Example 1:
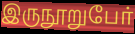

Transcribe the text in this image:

இருநூறுபேர்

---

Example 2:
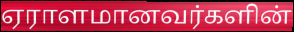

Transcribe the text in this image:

ஏராளமானவர்களின்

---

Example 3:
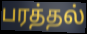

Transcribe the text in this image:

பரத்தல்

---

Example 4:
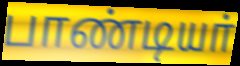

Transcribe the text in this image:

பாண்டியர்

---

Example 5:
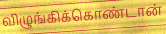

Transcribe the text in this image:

விழுங்கிக்கொண்டான்